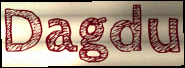
Dagdu